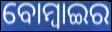
ବୋମ୍ବାଇର